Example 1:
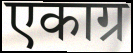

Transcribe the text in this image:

एकाग्र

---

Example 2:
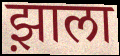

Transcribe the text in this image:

झ़ाला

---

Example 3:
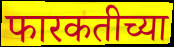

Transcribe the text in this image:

फारकतीच्या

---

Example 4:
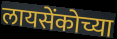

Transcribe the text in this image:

लायसेंकोच्या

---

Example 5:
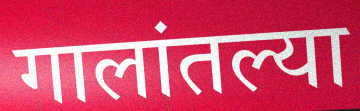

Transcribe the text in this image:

गालांतल्या